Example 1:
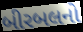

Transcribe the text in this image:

બીરબલનો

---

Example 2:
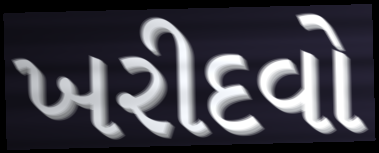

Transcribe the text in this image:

ખરીદવો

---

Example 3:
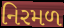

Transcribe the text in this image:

નિરમળ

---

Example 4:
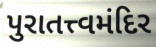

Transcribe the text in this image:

પુરાતત્ત્વમંદિર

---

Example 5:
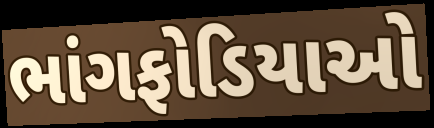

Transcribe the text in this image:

ભાંગફોડિયાઓ